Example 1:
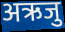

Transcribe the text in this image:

अऋजु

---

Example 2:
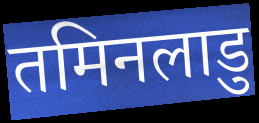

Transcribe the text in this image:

तमिनलाडु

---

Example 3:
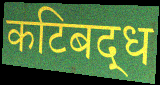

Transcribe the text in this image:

कटिबद्ध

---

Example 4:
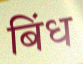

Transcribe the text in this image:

बिंध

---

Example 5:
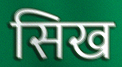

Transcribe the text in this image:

सिख